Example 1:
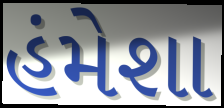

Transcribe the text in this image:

હંમેશા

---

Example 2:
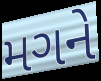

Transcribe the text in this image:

મગને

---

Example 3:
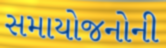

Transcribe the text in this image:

સમાયોજનોની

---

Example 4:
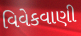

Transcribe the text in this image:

વિવેકવાણી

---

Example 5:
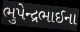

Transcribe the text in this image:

ભુપેન્દ્રભાઈના